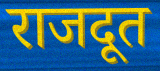
राजदूत